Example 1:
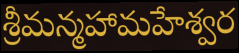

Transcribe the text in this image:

శ్రీమన్మహామహేశ్వర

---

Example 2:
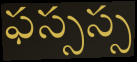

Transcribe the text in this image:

ఫస్సస్స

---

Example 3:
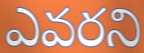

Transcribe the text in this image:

ఎవరని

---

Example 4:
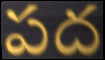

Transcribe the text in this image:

పద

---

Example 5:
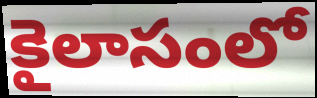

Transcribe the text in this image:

కైలాసంలో